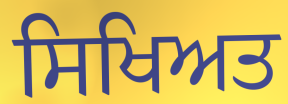
ਸਿਖਿਅਤ